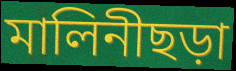
মালিনীছড়া